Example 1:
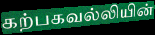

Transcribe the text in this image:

கற்பகவல்லியின்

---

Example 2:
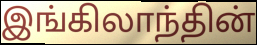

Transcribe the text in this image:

இங்கிலாந்தின்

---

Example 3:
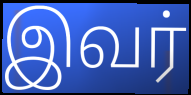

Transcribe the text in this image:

இவர்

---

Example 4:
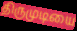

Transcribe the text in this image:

திருமுடியை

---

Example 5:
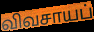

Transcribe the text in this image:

விவசாயப்